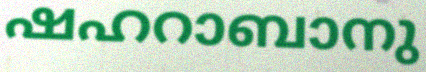
ഷഹറാബാനു